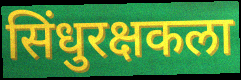
सिंधुरक्षकला